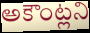
అకౌంట్లని